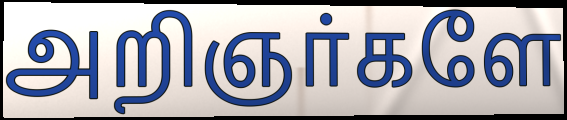
அறிஞர்களே